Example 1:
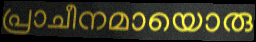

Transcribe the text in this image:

പ്രാചീനമായൊരു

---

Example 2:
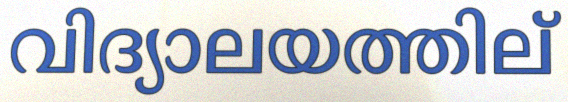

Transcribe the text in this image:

വിദ്യാലയത്തില്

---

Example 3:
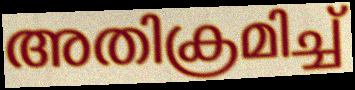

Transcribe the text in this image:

അതിക്രമിച്ച്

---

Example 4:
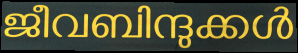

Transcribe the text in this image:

ജീവബിന്ദുക്കൾ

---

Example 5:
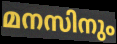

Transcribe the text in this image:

മനസിനും